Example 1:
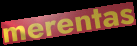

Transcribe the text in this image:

merentas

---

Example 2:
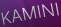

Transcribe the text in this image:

KAMINI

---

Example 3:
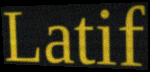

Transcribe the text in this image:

Latif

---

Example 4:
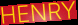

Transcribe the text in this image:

HENRY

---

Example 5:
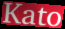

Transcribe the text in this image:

Kato